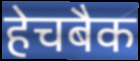
हेचबैक